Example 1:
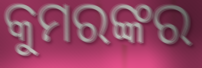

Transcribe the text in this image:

କୁମରଙ୍କର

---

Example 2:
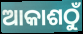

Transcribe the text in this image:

ଆକାଶଠୁଁ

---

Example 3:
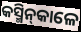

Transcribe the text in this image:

କସ୍ମିନ୍‍କାଳେ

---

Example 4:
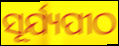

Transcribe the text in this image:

ସୂର୍ଯ୍ୟପୀଠ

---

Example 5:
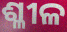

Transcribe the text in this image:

ଶ୍ଳୀଳ